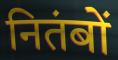
नितंबों